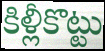
కిళ్లీకొట్టు